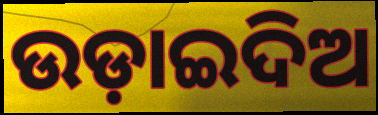
ଉଡ଼ାଇଦିଅ